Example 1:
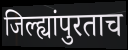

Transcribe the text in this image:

जिल्ह्यांपुरताच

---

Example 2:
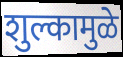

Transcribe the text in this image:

शुल्कामुळे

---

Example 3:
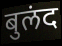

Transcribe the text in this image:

बुलंद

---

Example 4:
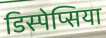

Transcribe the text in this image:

डिस्पेप्सिया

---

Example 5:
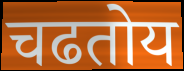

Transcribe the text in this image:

चढतोय